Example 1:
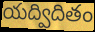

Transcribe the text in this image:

యద్విదితం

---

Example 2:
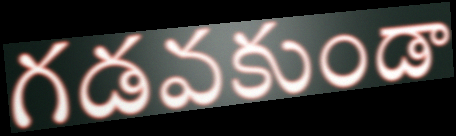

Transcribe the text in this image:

గడవకుండా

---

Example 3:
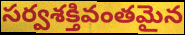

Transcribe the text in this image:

సర్వశక్తివంతమైన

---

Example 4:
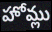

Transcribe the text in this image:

హోమ్లు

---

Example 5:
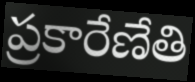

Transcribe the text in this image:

ప్రకారేణేతి